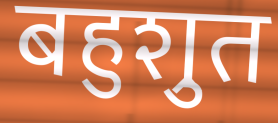
बहुश्रुत